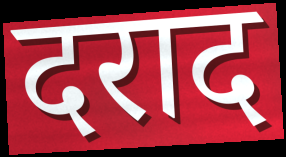
दराद